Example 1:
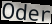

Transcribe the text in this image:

Oder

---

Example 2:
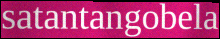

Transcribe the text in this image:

satantangobela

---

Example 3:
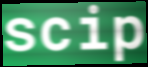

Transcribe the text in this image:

scip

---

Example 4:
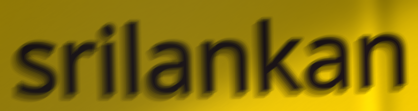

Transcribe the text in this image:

srilankan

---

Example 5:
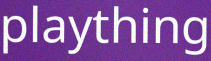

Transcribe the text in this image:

plaything